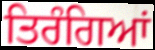
ਤਿਰੰਗਿਆਂ